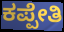
ಕಪ್ಪೇತಿ